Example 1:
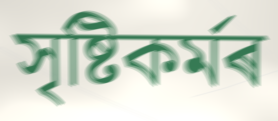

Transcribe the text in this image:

সৃষ্টিকৰ্মৰ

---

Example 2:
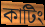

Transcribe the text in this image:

কাটিং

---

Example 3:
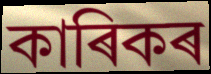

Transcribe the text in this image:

কাৰিকৰ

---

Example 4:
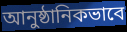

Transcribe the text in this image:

আনুষ্ঠানিকভাবে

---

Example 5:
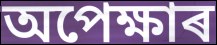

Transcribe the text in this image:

অপেক্ষাৰ